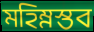
মহিম্নস্তব